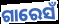
ଗାରେସଁ